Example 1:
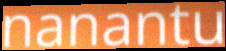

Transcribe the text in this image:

nanantu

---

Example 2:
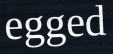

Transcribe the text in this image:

egged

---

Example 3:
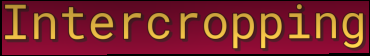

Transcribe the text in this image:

Intercropping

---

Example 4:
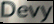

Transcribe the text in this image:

Devy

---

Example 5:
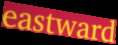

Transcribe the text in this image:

eastward